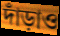
দাঁড়াও